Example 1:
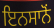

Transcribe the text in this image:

ਇਨਸਾਨੋਂ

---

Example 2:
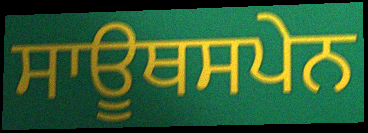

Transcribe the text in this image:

ਸਾਊਥਸਪੇਨ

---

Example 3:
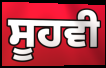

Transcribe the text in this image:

ਸੂਹਵੀ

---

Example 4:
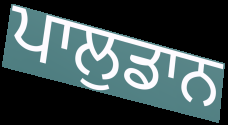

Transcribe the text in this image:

ਪਾਲੁਡਾਨ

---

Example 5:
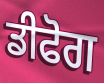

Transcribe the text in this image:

ਡੀਫੋਗ